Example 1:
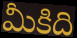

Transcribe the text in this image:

మీకిది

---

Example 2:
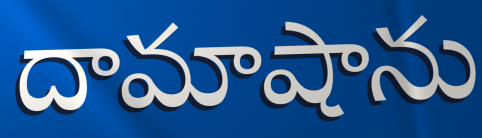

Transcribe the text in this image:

దామాషాను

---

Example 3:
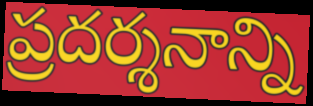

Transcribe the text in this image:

ప్రదర్శనాన్ని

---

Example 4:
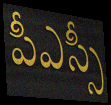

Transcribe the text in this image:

పీఎస్సీ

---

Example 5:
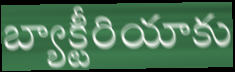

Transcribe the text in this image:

బ్యాక్టీరియాకు